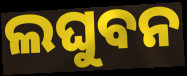
ଲଘୁବନ